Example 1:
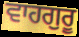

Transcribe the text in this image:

ਵਾਹਗੁਰੂ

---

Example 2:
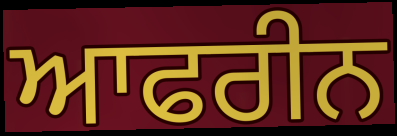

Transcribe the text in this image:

ਆਫਰੀਨ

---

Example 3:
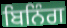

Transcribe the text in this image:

ਬਿਨਿੰਗ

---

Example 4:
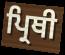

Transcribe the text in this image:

ਪ੍ਰਿਥੀ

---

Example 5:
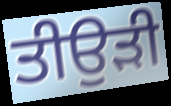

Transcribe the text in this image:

ਤੀਉੜੀ